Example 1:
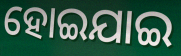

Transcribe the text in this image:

ହୋଇଯାଇ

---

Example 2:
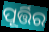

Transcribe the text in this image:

ପୂର୍ତ୍ତିର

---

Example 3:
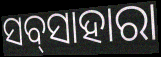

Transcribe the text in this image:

ସବ୍‌ସାହାରା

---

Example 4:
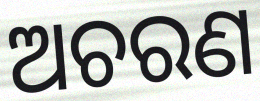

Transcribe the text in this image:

ଅଚରଣ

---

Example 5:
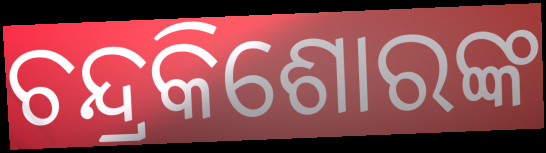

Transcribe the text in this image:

ଚନ୍ଦ୍ରକିଶୋରଙ୍କ